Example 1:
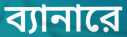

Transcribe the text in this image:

ব্যানারে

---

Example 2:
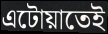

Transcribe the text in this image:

এটোয়াতেই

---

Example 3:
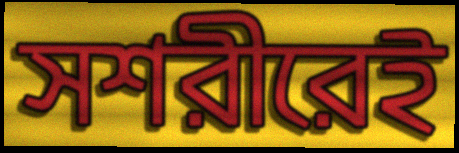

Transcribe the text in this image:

সশরীরেই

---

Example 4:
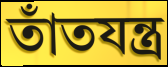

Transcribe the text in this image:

তাঁতযন্ত্র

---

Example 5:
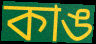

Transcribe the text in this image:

কাঙ